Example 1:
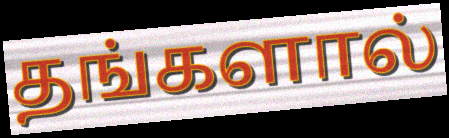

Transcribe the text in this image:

தங்களால்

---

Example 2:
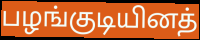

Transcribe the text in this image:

பழங்குடியினத்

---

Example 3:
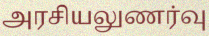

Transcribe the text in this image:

அரசியலுணர்வு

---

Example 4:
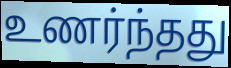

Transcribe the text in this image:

உணர்ந்தது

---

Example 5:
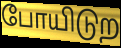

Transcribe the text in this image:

போயிடுற